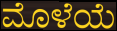
ಮೊಳೆಯೆ